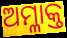
ଅମ୍ଳାକ୍ତ